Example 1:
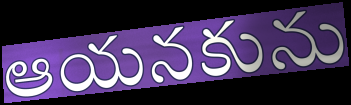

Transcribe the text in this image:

ఆయనకును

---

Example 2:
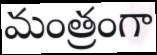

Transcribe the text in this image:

మంత్రంగా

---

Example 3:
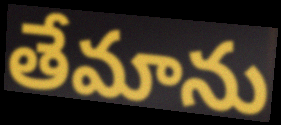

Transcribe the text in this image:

తేమాను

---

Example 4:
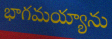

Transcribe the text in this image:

భాగమయ్యాను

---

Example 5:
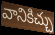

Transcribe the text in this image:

వానికిచ్చు